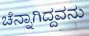
ಚೆನ್ನಾಗಿದ್ದವನು